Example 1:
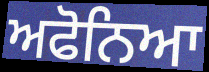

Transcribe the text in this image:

ਅਫੋਨਿਆ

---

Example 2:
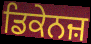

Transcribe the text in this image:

ਡਿਕੇਨਜ਼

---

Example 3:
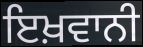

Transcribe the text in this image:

ਇਖ਼ਵਾਨੀ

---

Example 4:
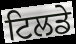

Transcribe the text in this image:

ਟਿਲਡੇ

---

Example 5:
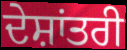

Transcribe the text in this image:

ਦੇਸ਼ਾਂਤਰੀ